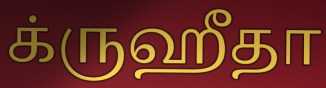
க்ருஹீதா